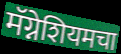
मॅग्नेशियमचा